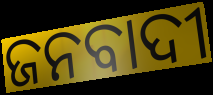
ଜନବାଦୀ